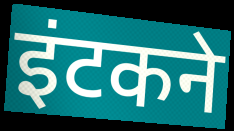
इंटकने